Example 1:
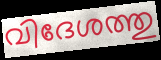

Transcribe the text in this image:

വിദേശത്തു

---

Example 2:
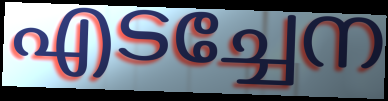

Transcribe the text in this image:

എടച്ചേന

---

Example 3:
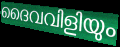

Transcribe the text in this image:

ദൈവവിളിയും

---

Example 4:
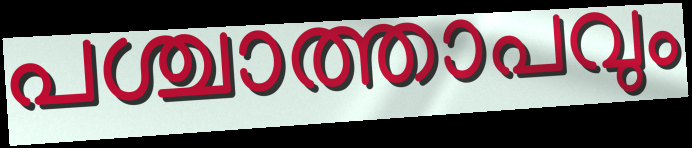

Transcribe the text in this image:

പശ്ചാത്താപവും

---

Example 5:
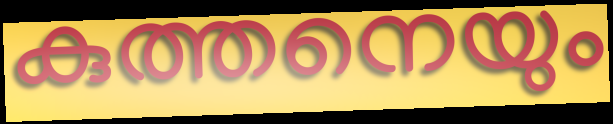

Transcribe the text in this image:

കുത്തനെയും